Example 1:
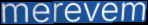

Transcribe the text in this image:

merevem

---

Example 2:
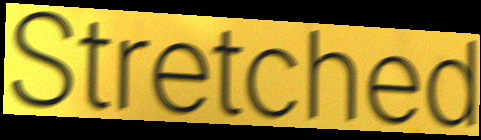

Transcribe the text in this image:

Stretched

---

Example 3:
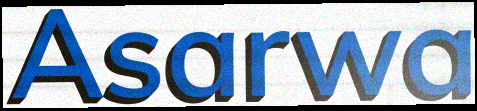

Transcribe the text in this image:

Asarwa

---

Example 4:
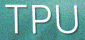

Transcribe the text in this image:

TPU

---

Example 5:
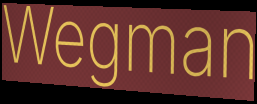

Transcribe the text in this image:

Wegman